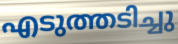
എടുത്തടിച്ചു